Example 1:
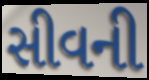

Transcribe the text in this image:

સીવની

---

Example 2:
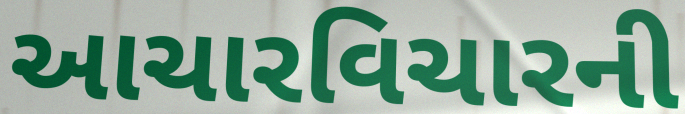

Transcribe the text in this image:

આચારવિચારની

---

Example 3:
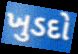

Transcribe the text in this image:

ખુડદો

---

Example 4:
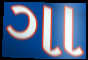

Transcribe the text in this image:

ગા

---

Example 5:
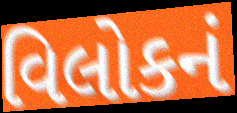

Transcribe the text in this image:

વિલોકનં